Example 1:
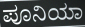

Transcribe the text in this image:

ಪೂನಿಯಾ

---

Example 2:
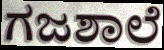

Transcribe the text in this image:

ಗಜಶಾಲೆ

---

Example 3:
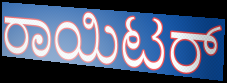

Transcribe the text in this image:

ರಾಯಿಟರ್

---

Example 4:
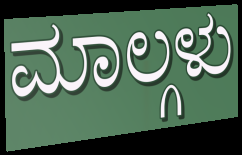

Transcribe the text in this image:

ಮಾಲ್ಗಳು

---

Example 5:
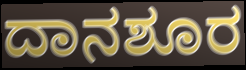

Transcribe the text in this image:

ದಾನಶೂರ